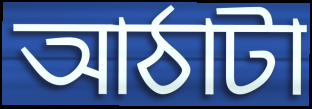
আঠাটা